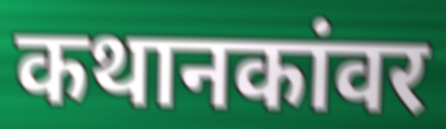
कथानकांवर